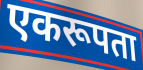
एकरूपता